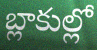
బ్లాకుల్లో